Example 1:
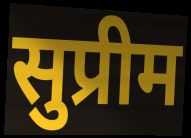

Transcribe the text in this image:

सुप्रीम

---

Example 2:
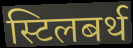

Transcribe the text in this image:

स्टिलबर्थ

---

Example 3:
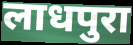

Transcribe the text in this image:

लाधपुरा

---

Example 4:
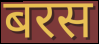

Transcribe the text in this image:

बरस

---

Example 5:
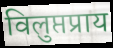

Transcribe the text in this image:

विलुप्तप्राय